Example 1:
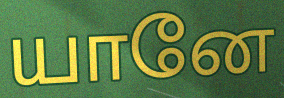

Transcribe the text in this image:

யானே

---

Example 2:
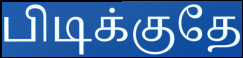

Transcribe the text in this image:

பிடிக்குதே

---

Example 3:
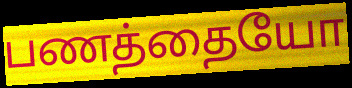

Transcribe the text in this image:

பணத்தையோ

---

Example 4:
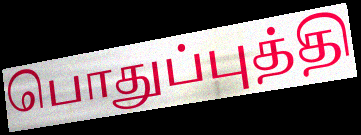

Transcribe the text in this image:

பொதுப்புத்தி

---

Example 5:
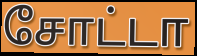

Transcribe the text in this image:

சோட்டா